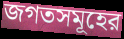
জগতসমূহের